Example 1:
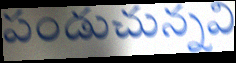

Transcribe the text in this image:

పండుచున్నవి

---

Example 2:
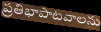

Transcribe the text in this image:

ప్రతిభాపాటవాలను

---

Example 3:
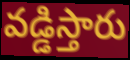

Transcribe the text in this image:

వడ్డిస్తారు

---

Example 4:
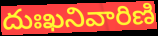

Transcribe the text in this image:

దుఃఖనివారిణి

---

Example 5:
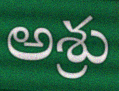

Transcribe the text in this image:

అశ్రు